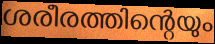
ശരീരത്തിന്റെയും